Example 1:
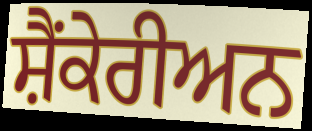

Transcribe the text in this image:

ਸ਼ੈਂਕੇਰੀਅਨ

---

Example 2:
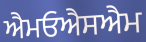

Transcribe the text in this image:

ਐਮਓਐਸਐਮ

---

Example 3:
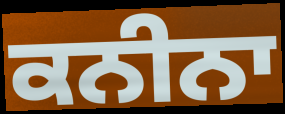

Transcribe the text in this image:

ਕਨੀਨਾ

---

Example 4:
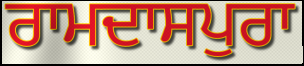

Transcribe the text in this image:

ਰਾਮਦਾਸਪੁਰਾ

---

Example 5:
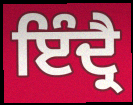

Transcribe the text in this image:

ਇੰਦ੍ਰੈ